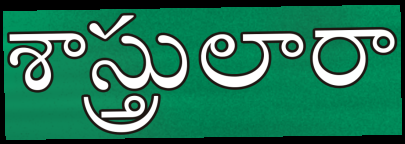
శాస్త్రులారా